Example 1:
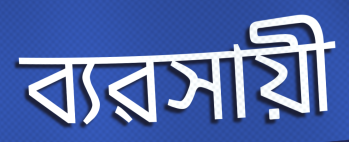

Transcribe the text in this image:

ব্যৱসায়ী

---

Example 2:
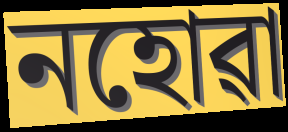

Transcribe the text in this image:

নহোৱা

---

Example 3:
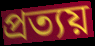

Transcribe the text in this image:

প্ৰত্যয়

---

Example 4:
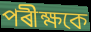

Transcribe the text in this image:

পৰীক্ষকে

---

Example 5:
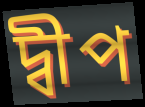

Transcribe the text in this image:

দ্বীপ